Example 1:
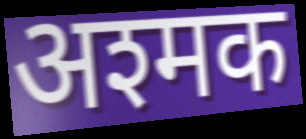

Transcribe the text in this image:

अश्मक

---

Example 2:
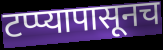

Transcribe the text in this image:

टप्प्यापासूनच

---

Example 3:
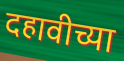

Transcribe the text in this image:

दहावीच्या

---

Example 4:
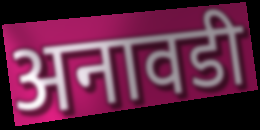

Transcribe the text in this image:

अनावडी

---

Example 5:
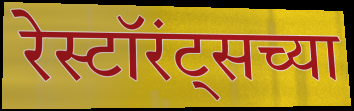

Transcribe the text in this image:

रेस्टॉरंट्सच्या